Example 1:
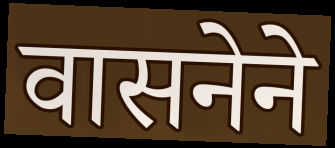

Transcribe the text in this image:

वासनेने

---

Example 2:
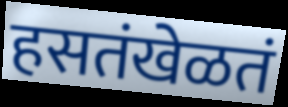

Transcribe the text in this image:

हसतंखेळतं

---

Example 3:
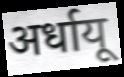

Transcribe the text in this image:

अर्धायू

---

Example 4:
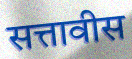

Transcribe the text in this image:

सत्तावीस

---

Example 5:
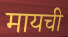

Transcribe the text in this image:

मायची